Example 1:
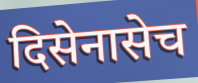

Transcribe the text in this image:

दिसेनासेच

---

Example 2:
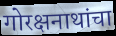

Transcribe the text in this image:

गोरक्षनाथांचा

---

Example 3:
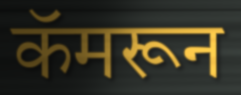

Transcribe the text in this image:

कॅमरून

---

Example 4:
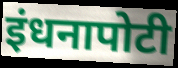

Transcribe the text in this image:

इंधनापोटी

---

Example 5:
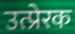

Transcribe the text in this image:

उत्प्रेरक